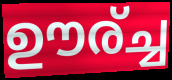
ഊര്ച്ച